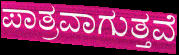
ಪಾತ್ರವಾಗುತ್ತವೆ